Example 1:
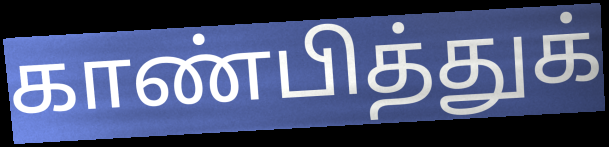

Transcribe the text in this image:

காண்பித்துக்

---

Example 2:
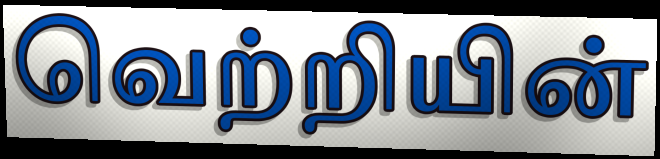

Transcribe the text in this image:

வெற்றியின்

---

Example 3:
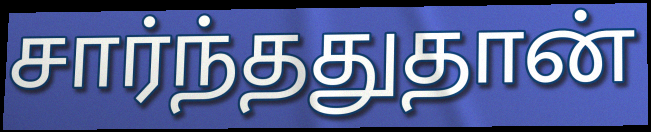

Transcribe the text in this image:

சார்ந்ததுதான்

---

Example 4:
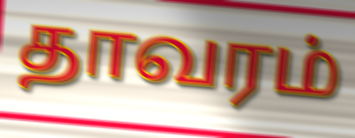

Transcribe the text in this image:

தாவரம்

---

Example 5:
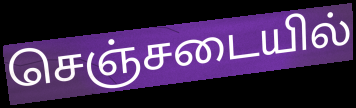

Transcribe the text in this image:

செஞ்சடையில்